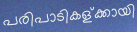
പരിപാടികള്ക്കായി